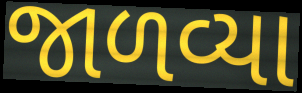
જાળવ્યા